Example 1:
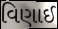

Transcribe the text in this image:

વિણાઈ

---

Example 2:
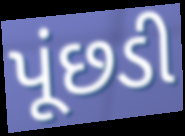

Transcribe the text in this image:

પૂંછડી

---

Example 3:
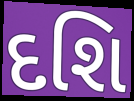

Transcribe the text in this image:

દશિ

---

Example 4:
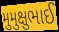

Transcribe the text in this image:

મુમુક્ષુભાઈ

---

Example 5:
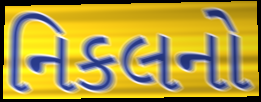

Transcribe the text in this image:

નિકલનો